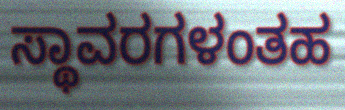
ಸ್ಥಾವರಗಳಂತಹ